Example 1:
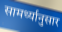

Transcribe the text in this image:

सामर्थ्यानुसार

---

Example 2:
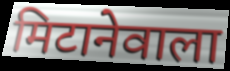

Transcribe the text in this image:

मिटानेवाला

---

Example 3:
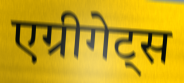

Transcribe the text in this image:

एग्रीगेट्स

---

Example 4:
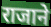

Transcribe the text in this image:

राजाने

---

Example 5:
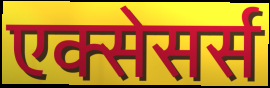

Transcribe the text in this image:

एक्सेसर्स